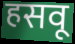
हसवू